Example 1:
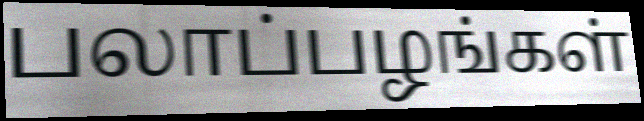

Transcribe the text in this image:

பலாப்பழங்கள்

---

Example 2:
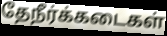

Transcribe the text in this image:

தேநீர்க்கடைகள்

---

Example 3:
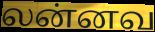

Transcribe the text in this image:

லன்னவ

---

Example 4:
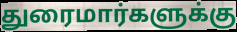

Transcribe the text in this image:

துரைமார்களுக்கு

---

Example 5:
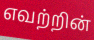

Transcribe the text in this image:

எவற்றின்